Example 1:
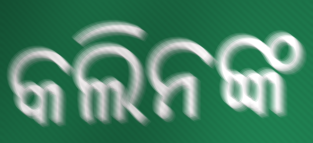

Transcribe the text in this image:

କଲିନଙ୍କ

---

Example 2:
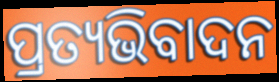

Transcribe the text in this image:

ପ୍ରତ୍ୟଭିବାଦନ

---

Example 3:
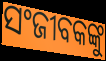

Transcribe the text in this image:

ସଂଜୀବକଙ୍କୁ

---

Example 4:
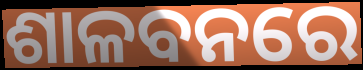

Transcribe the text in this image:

ଶାଳବନରେ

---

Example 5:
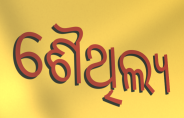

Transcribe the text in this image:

ଶୈଥିଲ୍ୟ